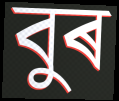
বুৰ